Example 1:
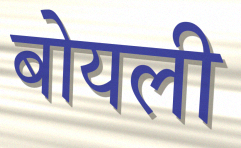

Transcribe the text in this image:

बोयली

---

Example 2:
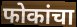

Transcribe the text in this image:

फोकांचा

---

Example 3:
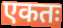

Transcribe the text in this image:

एकतः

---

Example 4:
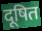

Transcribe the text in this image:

दूषित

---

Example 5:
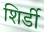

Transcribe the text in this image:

शिर्डी